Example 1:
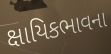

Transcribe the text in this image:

ક્ષાયિકભાવના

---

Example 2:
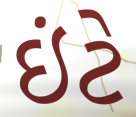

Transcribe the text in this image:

ઇંટે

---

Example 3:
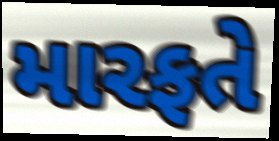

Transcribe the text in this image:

મારફતે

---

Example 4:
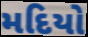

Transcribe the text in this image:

મદિયો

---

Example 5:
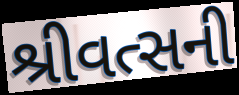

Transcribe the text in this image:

શ્રીવત્સની